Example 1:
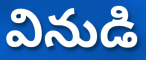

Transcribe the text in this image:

వినుడి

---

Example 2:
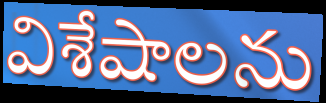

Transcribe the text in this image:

విశేషాలను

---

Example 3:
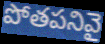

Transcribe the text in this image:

పోతపనివై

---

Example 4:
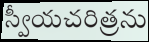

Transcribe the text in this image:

స్వీయచరిత్రను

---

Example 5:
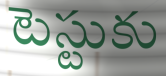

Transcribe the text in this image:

టెస్టుకు